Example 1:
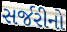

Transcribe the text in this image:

સર્જરીનો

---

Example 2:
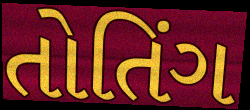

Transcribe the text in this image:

તોતિંગ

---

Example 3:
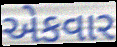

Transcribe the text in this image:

એકવાર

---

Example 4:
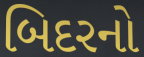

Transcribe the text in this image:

બિદરનો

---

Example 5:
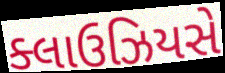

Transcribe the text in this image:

ક્લાઉઝિયસે